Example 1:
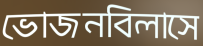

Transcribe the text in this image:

ভোজনবিলাসে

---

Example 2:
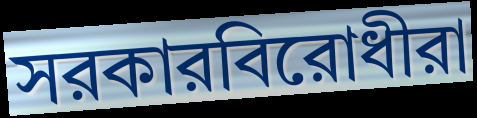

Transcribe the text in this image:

সরকারবিরোধীরা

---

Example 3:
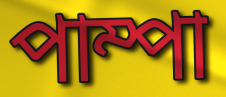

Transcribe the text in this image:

পাম্পা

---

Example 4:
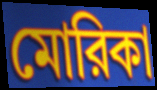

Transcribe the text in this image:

মোরিকা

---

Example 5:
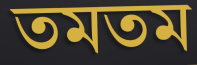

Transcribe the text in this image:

তমতম